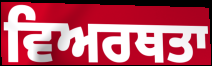
ਵਿਅਰਥਤਾ